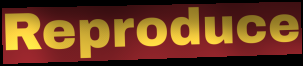
Reproduce